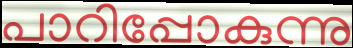
പാറിപ്പോകുന്നു